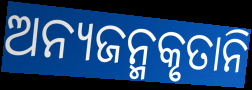
ଅନ୍ଯଜନ୍ମକୃତାନି